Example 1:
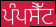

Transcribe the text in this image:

ਪੰਪਸੈੱਟ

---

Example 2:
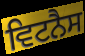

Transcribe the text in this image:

ਵਿਟਨੈਸ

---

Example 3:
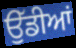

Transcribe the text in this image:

ਉੱਡੀਆਂ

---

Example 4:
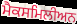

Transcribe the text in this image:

ਮੈਕਸਮਿਲੀਅਨ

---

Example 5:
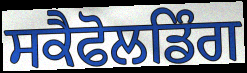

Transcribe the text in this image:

ਸਕੈਫੋਲਡਿੰਗ